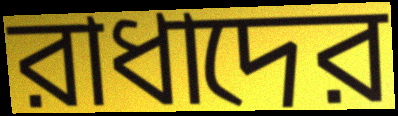
রাধাদের